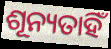
ଶୂନ୍ୟତାହିଁ